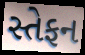
સ્તેફન